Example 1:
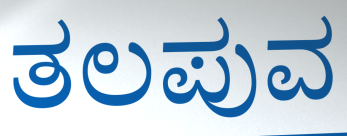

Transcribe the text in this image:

ತಲಪುವ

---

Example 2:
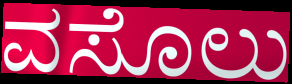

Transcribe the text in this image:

ವಸೊಲು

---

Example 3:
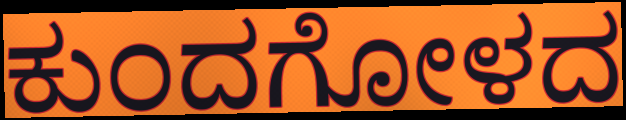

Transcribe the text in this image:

ಕುಂದಗೋಳದ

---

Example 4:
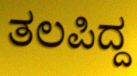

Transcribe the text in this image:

ತಲಪಿದ್ದ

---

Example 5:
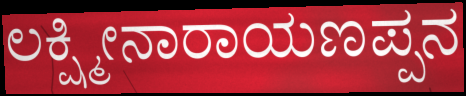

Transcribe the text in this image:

ಲಕ್ಷ್ಮೀನಾರಾಯಣಪ್ಪನ